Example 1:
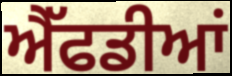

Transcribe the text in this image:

ਐੱਫਡੀਆਂ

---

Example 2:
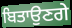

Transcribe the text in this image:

ਬਿਤਾਉਣਗੇ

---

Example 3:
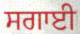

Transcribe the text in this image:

ਸਗਾਈ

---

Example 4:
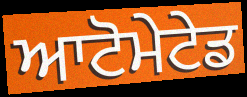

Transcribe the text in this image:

ਆਟੋਮੇਟੇਡ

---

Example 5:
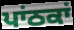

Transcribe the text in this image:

ਪਾਂਠਕਾਂ